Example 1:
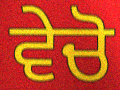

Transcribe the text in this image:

ਵੇਚੋ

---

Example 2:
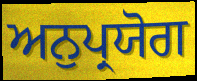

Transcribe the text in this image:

ਅਨੁਪ੍ਰਯੋਗ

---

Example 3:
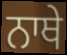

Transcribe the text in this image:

ਨਾਥੇ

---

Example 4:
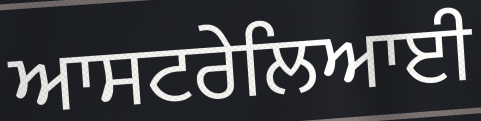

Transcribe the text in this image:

ਆਸਟਰੇਲਿਆਈ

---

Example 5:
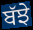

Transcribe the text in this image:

ਬੱਝੇ